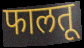
फालतू